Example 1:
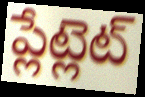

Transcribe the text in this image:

ప్లేట్లెట్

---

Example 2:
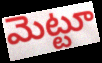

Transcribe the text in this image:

మెట్టూ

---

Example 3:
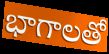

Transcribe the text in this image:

భాగాలతో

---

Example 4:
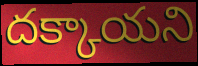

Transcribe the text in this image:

దక్కాయని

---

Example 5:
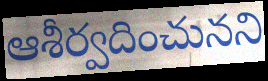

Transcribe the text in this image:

ఆశీర్వదించునని